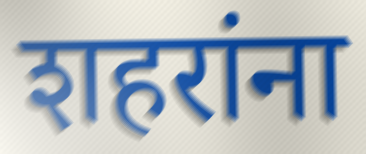
शहरांना